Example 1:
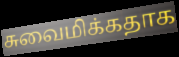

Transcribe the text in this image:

சுவைமிக்கதாக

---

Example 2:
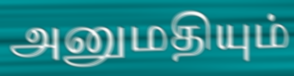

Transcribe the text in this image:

அனுமதியும்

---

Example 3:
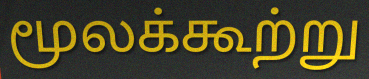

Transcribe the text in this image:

மூலக்கூற்று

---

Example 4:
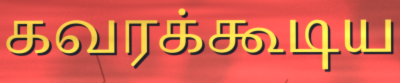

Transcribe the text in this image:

கவரக்கூடிய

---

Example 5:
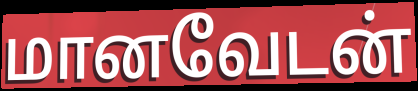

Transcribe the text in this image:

மானவேடன்